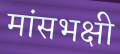
मांसभक्षी